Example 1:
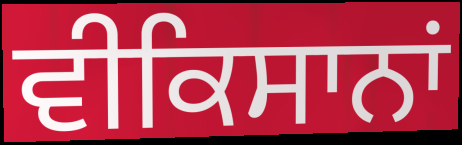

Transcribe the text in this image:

ਵੀਕਿਸਾਨਾਂ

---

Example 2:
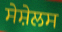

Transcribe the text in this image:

ਸੇਸ਼ੇਲਸ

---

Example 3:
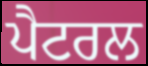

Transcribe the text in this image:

ਪੈਟਰਲ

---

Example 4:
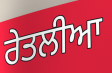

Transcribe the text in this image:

ਰੇਤਲੀਆ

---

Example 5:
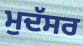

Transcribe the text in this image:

ਮੁਦੱਸਰ